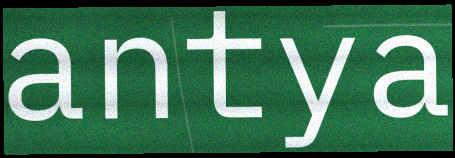
antya